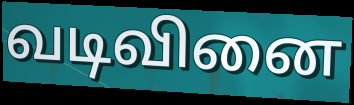
வடிவினை